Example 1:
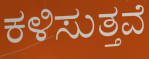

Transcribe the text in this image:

ಕಳಿಸುತ್ತವೆ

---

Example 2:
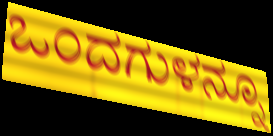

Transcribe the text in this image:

ಒಂದಗುಳನ್ನೂ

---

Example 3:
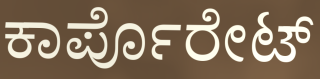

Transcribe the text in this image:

ಕಾರ್ಪೊರೇಟ್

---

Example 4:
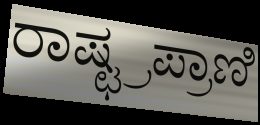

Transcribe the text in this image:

ರಾಷ್ಟ್ರಪ್ರಾಣಿ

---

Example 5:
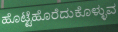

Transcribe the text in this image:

ಹೊಟ್ಟೆಹೊರೆದುಕೊಳ್ಳುವ